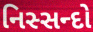
નિસ્સન્દો